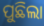
ପୁଛିଲା